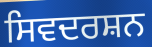
ਸਿਵਦਰਸ਼ਨ